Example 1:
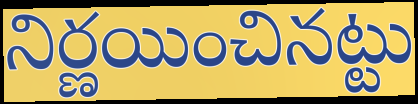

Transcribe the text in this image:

నిర్ణయించినట్టు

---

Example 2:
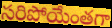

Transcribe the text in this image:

సరిపోయేంతగా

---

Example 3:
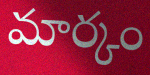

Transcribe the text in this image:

మార్కం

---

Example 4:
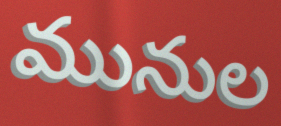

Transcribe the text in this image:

మునుల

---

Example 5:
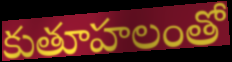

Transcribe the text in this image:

కుతూహలంతో